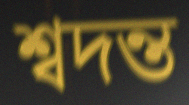
শ্বদন্ত